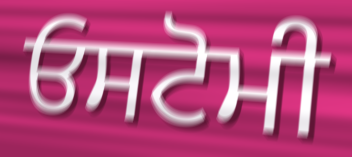
ਓਸਟੋਮੀ